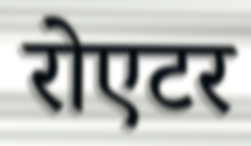
रोएटर